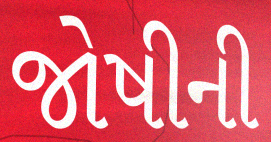
જોષીની